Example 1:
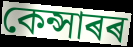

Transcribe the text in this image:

কেন্সাৰৰ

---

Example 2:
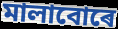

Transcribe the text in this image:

মালাবোৰে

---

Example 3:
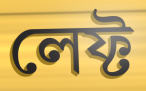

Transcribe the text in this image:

লেফ্ট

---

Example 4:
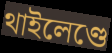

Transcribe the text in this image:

থাইলেণ্ডে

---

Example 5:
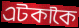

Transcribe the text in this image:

এটকাকৈ